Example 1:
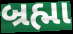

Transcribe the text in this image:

બ્રહ્મા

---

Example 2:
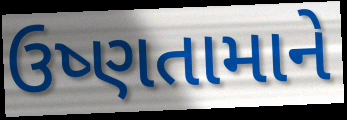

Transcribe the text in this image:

ઉષ્ણતામાને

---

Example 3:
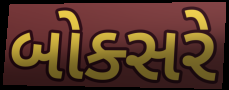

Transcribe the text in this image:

બોક્સરે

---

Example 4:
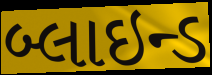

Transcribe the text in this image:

બ્લાઇન્ડ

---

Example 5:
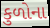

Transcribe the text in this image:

કુળોના